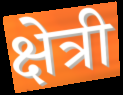
क्षेत्री